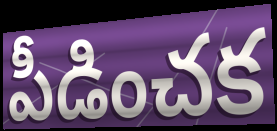
పీడించక